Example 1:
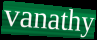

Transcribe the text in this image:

vanathy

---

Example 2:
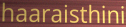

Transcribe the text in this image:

haaraisthini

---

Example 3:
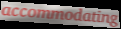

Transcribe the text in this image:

accommodating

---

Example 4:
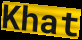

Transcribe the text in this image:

Khat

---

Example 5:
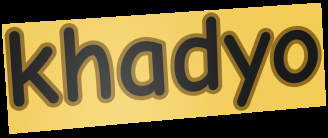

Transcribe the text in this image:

khadyo